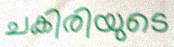
ചകിരിയുടെ